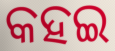
କହଇ